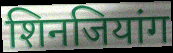
शिनजियांग